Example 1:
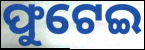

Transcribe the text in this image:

ଫୁଟେଇ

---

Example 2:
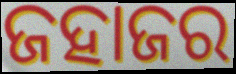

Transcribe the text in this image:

ଜହାଜର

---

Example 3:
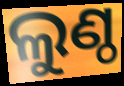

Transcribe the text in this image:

ଲୁଣ୍ଠ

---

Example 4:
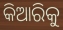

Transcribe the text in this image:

କିଆରିକୁ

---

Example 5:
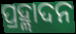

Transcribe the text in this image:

ପ୍ରହ୍ଲାଦନ